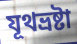
যূথভ্রষ্টা